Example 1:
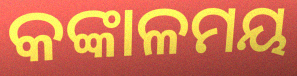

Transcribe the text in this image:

କଙ୍କାଳମୟ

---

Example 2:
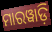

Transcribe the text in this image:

ମାରୱାଡ଼ି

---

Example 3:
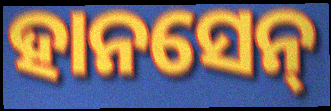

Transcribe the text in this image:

ହାନସେନ୍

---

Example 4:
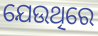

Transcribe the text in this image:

ଯେଉଥିରେ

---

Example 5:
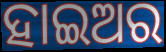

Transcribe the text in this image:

ହାଇଅର